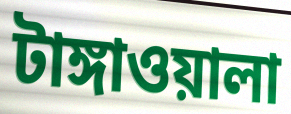
টাঙ্গাওয়ালা